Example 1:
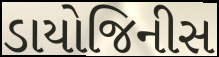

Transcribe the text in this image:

ડાયોજિનીસ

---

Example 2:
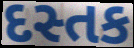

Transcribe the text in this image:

દસ્તક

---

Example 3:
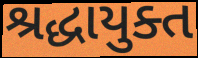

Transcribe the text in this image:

શ્રદ્ધાયુક્ત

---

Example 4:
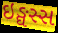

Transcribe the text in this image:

ઇઙ્ઘસ્સ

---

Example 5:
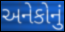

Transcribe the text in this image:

અનેકોનું